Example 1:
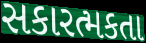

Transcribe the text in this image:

સકારત્મકતા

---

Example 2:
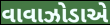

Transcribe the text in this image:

વાવાઝોડાએ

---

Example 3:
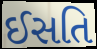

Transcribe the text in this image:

ઈસતિ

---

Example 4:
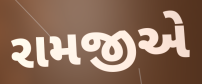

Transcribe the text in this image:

રામજીએ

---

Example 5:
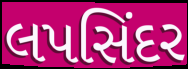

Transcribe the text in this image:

લપસિંદર